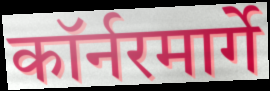
कॉर्नरमार्गे